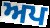
ਅਪ